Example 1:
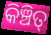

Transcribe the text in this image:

କିଞ୍ଚିତ୍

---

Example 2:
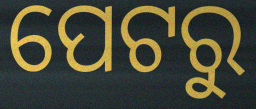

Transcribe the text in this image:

ପେଟରୁ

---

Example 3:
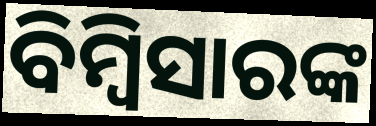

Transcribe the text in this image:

ବିମ୍ବିସାରଙ୍କ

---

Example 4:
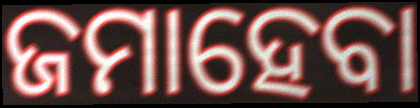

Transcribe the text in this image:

ଜମାହେବା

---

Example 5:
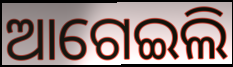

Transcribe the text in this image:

ଆଗେଇଲି